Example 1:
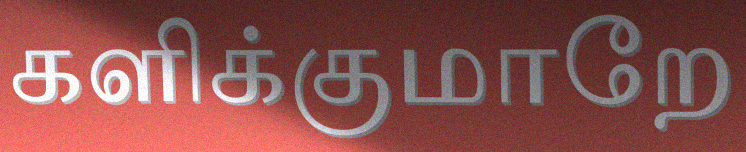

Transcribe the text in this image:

களிக்குமாறே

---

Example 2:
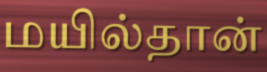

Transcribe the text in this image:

மயில்தான்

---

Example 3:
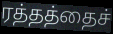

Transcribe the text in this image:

ரத்தத்தைச்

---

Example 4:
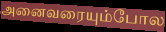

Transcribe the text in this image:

அனைவரையும்போல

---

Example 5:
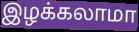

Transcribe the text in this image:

இழக்கலாமா